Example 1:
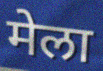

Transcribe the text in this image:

मेला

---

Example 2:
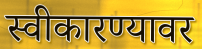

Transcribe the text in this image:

स्वीकारण्यावर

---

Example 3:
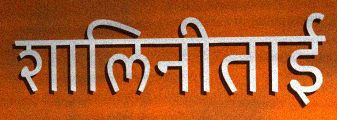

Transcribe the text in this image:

शालिनीताई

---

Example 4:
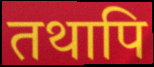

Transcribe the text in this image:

तथापि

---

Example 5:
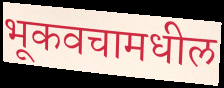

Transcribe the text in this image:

भूकवचामधील